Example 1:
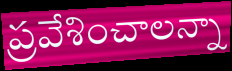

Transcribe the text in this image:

ప్రవేశించాలన్నా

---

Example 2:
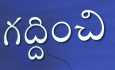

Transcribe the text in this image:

గద్దించి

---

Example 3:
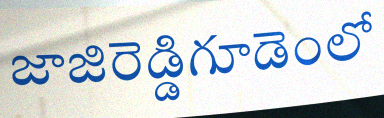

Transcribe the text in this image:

జాజిరెడ్డిగూడెంలో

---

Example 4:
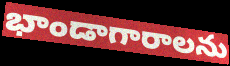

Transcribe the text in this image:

భాండాగారాలను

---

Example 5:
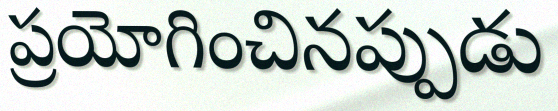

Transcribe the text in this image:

ప్రయోగించినప్పుడు